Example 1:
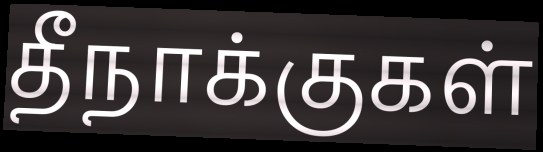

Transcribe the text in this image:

தீநாக்குகள்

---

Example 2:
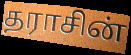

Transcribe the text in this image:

தராசின்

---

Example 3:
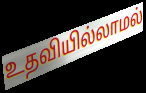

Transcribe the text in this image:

உதவியில்லாமல்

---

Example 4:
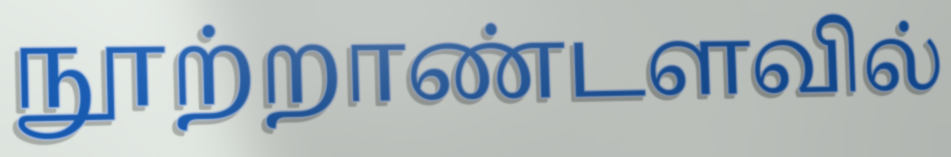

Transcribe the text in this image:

நூற்றாண்டளவில்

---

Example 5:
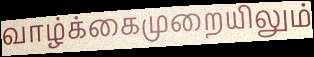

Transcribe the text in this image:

வாழ்க்கைமுறையிலும்